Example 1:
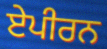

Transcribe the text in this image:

ਏਪੀਰਨ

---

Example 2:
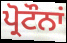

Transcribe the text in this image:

ਪ੍ਰੋਟੌਨਾਂ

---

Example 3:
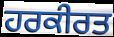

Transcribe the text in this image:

ਹਰਕੀਰਤ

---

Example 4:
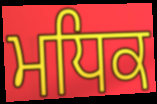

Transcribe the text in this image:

ਮਧਿਕ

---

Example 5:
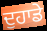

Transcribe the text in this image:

ਦੁਹਾਡੇ